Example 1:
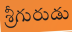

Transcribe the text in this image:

శ్రీగురుడు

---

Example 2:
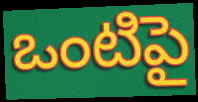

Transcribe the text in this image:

ఒంటిపై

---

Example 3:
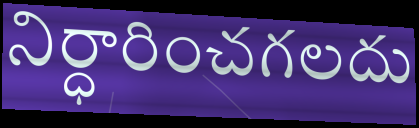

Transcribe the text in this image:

నిర్ధారించగలదు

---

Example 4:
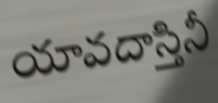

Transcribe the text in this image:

యావదాస్తినీ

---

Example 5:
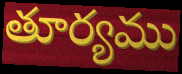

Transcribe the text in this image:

తూర్యము